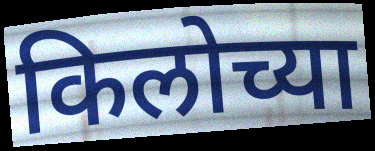
किलोच्या